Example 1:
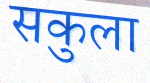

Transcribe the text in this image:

सकुला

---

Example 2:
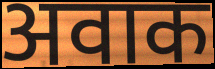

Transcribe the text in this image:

अवाक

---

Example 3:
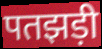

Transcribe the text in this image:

पतझड़ी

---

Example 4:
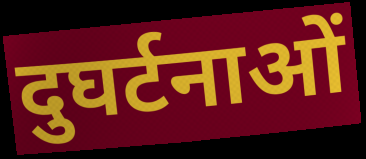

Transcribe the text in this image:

दुघर्टनाओं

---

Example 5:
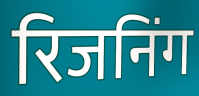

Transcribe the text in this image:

रिजनिंग